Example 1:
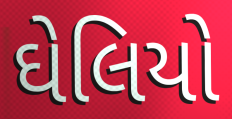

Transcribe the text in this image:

ઘેલિયો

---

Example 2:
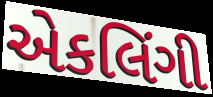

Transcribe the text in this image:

એકલિંગી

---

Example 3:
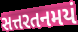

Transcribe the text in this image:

સત્તરતનમયં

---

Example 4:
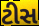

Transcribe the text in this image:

ટીસ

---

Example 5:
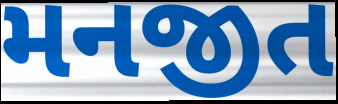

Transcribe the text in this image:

મનજીત